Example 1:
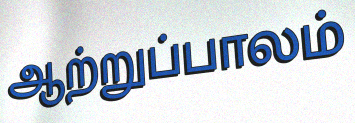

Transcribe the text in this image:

ஆற்றுப்பாலம்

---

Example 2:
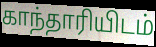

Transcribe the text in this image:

காந்தாரியிடம்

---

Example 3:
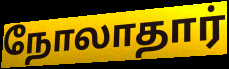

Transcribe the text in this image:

நோலாதார்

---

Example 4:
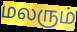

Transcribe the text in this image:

மலரும்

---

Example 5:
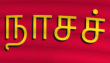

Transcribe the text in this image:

நாசச்